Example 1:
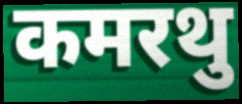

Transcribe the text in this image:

कमरथु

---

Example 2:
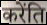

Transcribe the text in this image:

करेंति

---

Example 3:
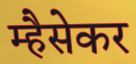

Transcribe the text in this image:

म्हैसेकर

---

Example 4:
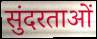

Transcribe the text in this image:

सुंदरताओं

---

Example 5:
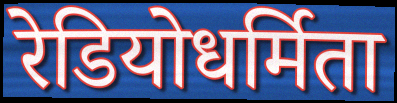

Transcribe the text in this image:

रेडियोधर्मिता